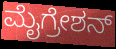
ಮೈಗ್ರೇಶನ್